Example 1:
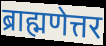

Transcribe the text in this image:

ब्राह्मणेत्तर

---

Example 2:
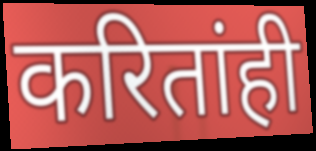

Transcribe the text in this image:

करितांही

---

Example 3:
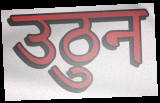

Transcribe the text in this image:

उठुन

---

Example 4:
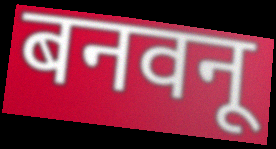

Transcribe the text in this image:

बनवनू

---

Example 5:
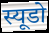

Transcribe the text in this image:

स्यूडो